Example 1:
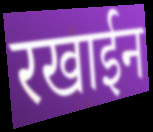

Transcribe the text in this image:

रखाईन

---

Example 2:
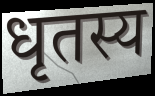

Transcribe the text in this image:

धृतस्य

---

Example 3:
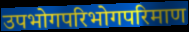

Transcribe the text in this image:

उपभोगपरिभोगपरिमाण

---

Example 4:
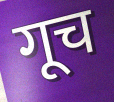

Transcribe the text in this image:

गूच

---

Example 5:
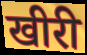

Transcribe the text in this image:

खीरी